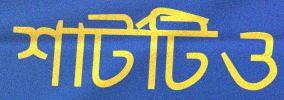
শার্টটিও